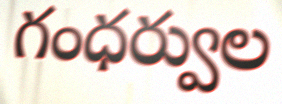
గంధర్వుల